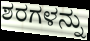
ಶರಗಳನ್ನು